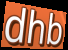
dhb